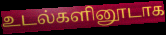
உடல்களினூடாக